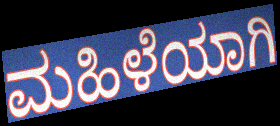
ಮಹಿಳೆಯಾಗಿ